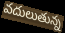
వదులుతున్న